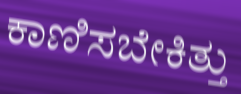
ಕಾಣಿಸಬೇಕಿತ್ತು